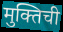
मुक्तिची